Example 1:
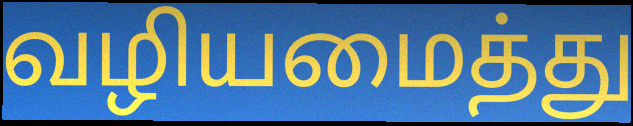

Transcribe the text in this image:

வழியமைத்து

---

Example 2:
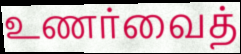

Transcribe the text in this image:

உணர்வைத்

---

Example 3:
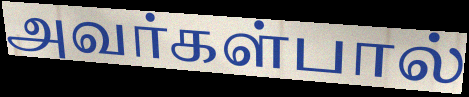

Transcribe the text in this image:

அவர்கள்பால்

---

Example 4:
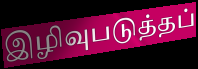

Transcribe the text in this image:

இழிவுபடுத்தப்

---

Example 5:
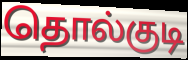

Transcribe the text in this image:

தொல்குடி